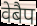
वेबैप